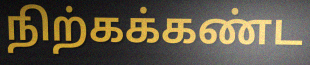
நிற்கக்கண்ட